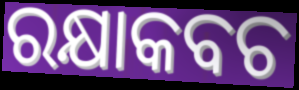
ରକ୍ଷାକବଚ